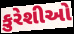
કુરેશીઓ